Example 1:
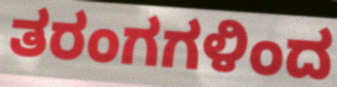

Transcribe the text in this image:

ತರಂಗಗಳಿಂದ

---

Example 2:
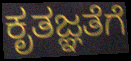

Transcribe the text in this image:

ಕೃತಜ್ಞತೆಗೆ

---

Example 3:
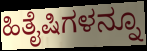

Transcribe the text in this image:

ಹಿತೈಷಿಗಳನ್ನೂ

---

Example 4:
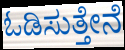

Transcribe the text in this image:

ಓಡಿಸುತ್ತೇನೆ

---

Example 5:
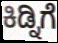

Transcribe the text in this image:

ಕಿಡ್ನಿಗೆ